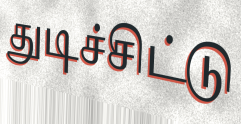
துடிச்சிட்டு